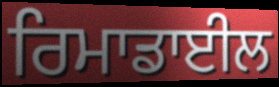
ਰਿਮਾਡਾਈਲ